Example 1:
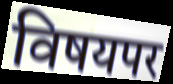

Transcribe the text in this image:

विषयपर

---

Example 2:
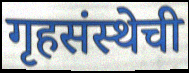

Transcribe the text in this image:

गृहसंस्थेची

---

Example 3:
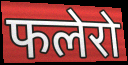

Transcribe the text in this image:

फलेरो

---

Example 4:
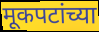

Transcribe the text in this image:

मूकपटांच्या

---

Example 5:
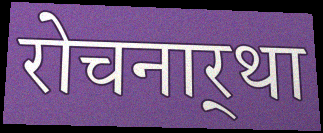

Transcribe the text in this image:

रोचनार्था